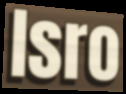
Isro